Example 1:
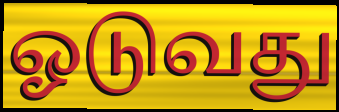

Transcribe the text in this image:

ஓடுவது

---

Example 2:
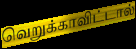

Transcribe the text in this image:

வெறுக்காவிட்டால்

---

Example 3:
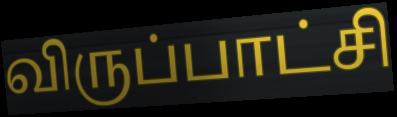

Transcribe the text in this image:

விருப்பாட்சி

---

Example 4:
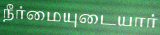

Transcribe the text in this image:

நீர்மையுடையார்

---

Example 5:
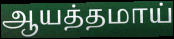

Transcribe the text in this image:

ஆயத்தமாய்